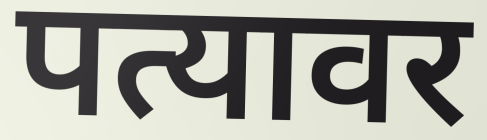
पत्यावर